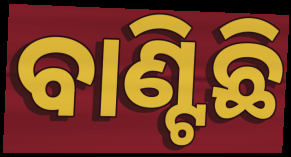
ବାଣ୍ଟିଛି